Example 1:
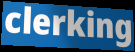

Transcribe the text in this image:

clerking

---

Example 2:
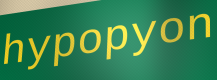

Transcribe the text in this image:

hypopyon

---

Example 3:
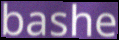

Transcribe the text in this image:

bashe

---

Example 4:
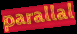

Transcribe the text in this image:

parallal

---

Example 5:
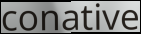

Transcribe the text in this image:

conative